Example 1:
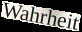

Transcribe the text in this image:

Wahrheit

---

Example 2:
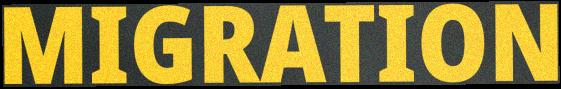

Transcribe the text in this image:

MIGRATION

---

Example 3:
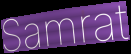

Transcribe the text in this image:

Samrat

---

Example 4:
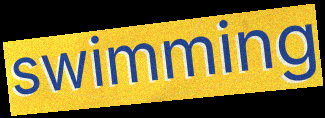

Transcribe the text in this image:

swimming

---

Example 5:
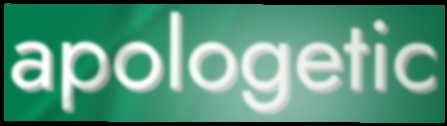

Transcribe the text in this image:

apologetic